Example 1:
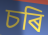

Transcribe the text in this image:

চৰি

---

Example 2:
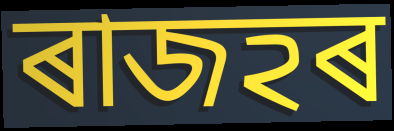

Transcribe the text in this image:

ৰাজহৰ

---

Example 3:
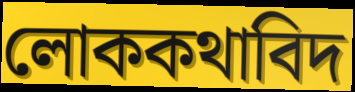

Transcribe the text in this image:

লোককথাবিদ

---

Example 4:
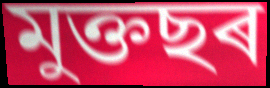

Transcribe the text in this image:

মুক্তছৰ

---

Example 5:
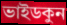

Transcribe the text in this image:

ভাইডকুন